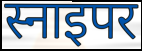
स्नाइपर